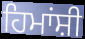
ਹਿਮਾਂਸ਼ੀ